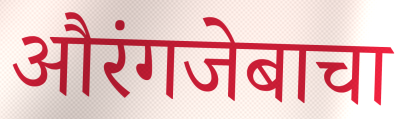
औरंगजेबाचा